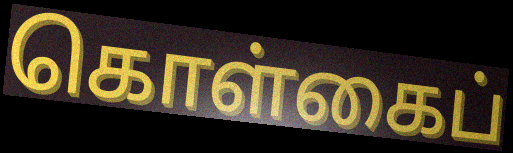
கொள்கைப்